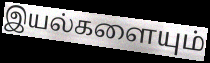
இயல்களையும்